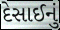
દેસાઈનું